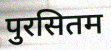
पुरसितम